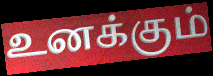
உனக்கும்